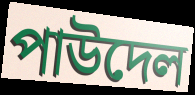
পাউদেল